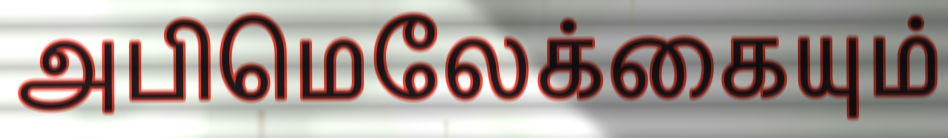
அபிமெலேக்கையும்